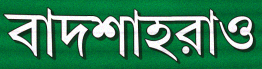
বাদশাহরাও